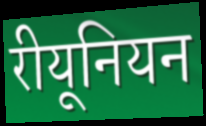
रीयूनियन